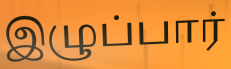
இழுப்பார்